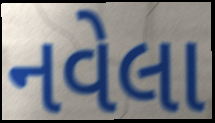
નવેલા